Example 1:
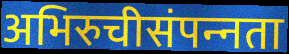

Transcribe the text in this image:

अभिरुचीसंपन्नता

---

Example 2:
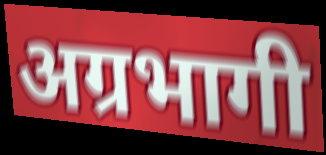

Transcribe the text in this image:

अग्रभागी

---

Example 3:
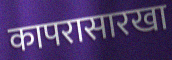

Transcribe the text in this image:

कापरासारखा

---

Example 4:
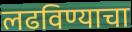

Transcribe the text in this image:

लढविण्याचा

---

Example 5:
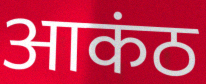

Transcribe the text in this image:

आकंठ